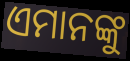
ଏମାନଙ୍କୁ